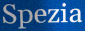
Spezia